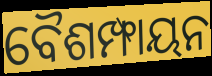
ବୈଶମ୍ଫାୟନ